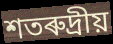
শতৰুদ্ৰীয়